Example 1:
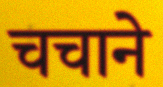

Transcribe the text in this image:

चचाने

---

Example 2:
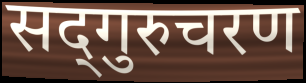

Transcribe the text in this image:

सद्‍गुरुचरण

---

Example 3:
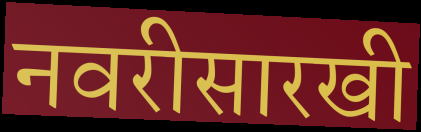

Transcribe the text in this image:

नवरीसारखी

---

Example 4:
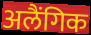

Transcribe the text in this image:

अलैंगिक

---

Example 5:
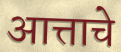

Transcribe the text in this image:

आत्ताचे